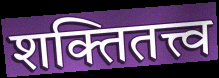
शक्तितत्त्व